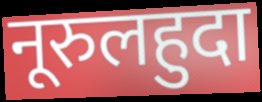
नूरुलहुदा